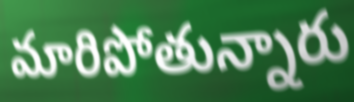
మారిపోతున్నారు